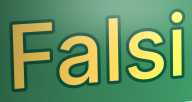
Falsi